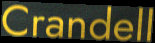
Crandell